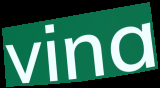
vina